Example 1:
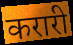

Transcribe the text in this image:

करारी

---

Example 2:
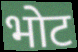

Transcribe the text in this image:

भोट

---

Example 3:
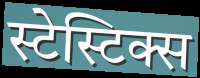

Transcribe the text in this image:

स्टेस्टिक्स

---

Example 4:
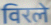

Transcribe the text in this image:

विरले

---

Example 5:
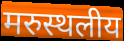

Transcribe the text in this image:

मरुस्थलीय